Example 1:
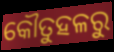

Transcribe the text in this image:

କୌତୁହଳରୁ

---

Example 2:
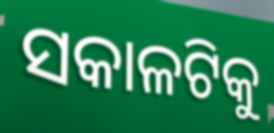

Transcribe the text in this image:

ସକାଳଟିକୁ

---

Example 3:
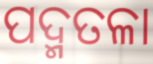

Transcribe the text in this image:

ପଦ୍ମତଳା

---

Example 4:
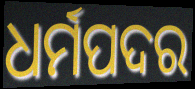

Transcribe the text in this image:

ଧର୍ମପଦର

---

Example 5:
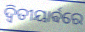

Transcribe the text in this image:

ଦ୍ଵିତୀୟାର୍ଵରେ